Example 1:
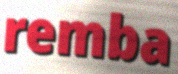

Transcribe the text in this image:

remba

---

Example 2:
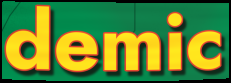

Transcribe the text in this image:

demic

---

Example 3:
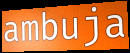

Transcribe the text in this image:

ambuja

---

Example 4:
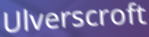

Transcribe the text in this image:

Ulverscroft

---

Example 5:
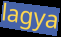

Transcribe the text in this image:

lagya